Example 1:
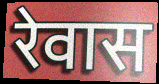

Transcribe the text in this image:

रेवास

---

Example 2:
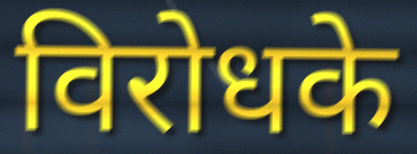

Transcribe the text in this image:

विरोधके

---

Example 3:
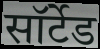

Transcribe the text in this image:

सॉर्टेड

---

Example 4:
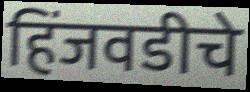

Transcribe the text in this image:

हिंजवडीचे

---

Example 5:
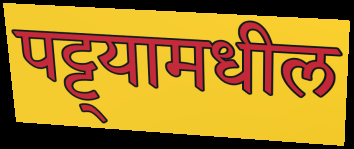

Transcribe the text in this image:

पट्ट्यामधील